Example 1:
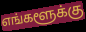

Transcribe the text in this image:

எங்களூக்கு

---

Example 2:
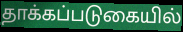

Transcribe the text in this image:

தாக்கப்படுகையில்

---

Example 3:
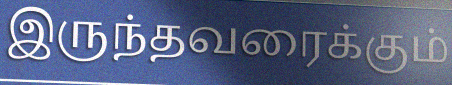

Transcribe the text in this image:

இருந்தவரைக்கும்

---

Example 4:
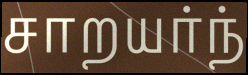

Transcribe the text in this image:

சாறயர்ந்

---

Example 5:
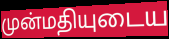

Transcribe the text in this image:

முன்மதியுடைய